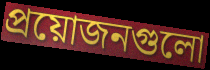
প্রয়োজনগুলো